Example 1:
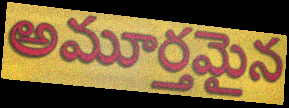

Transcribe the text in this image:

అమూర్తమైన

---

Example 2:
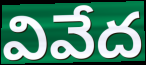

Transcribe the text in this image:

వివేద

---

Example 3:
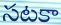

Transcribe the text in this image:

సటకా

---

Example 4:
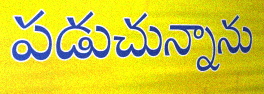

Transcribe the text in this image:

పడుచున్నాను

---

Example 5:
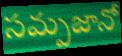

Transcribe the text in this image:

సమ్పజానో